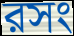
রসং